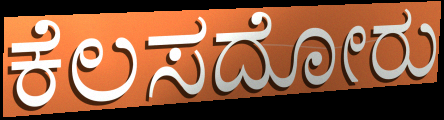
ಕೆಲಸದೋರು